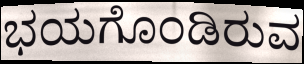
ಭಯಗೊಂಡಿರುವ